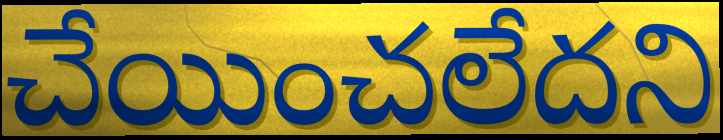
చేయించలేదని